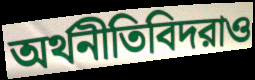
অর্থনীতিবিদরাও